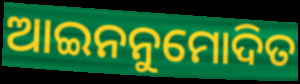
ଆଇନନୁମୋଦିତ